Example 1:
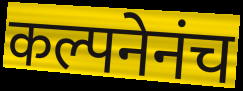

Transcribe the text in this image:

कल्पनेनंच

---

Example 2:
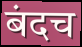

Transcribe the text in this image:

बंदच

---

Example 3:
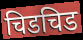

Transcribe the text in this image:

चिडचिड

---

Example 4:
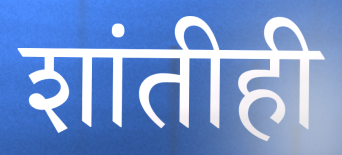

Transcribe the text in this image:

शांतीही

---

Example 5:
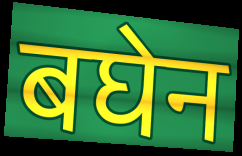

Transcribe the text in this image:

बघेन